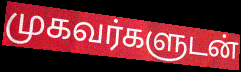
முகவர்களுடன்